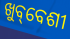
ଖୁବ୍‌ବେଶୀ